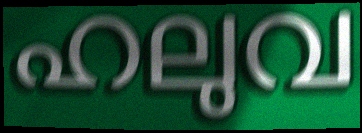
ഹലുവ